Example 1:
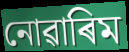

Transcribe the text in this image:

নোৱাৰিম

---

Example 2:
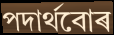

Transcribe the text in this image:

পদাৰ্থবোৰ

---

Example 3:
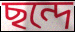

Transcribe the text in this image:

ছন্দে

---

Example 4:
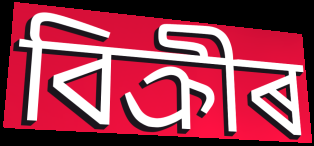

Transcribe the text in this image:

বিক্ৰীৰ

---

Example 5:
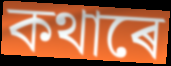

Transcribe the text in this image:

কথাৰে